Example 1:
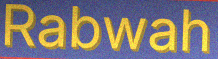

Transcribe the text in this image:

Rabwah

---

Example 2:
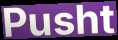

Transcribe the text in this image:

Pusht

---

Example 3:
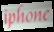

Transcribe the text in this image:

iphone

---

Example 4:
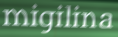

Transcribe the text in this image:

migilina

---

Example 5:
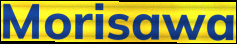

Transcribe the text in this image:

Morisawa